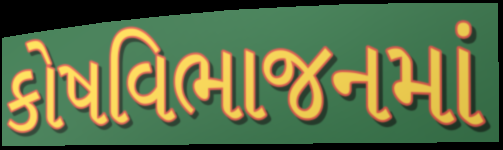
કોષવિભાજનમાં